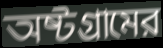
অষ্টগ্রামের